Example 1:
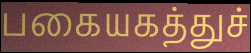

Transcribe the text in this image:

பகையகத்துச்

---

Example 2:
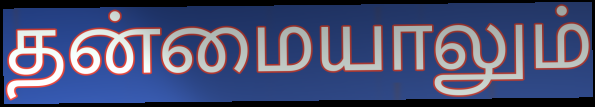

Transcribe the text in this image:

தன்மையாலும்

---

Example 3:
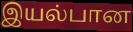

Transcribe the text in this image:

இயல்பான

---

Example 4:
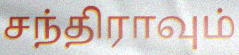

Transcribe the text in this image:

சந்திராவும்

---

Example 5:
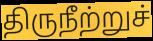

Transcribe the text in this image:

திருநீற்றுச்